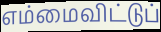
எம்மைவிட்டுப்